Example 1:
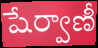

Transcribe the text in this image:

షేర్వాణీ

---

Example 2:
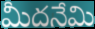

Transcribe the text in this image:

మీదనేమి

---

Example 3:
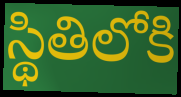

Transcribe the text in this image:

స్థితిలోకి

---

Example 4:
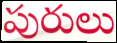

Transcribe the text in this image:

పురులు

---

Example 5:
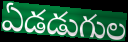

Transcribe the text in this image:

ఏడడుగుల